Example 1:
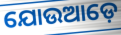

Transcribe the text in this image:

ଯୋଉଆଡ଼େ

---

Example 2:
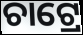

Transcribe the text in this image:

ଚାଟ୍ରେ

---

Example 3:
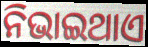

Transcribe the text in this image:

ନିଭାଇଥାଏ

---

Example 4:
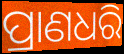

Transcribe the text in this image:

ପ୍ରାଣଧରି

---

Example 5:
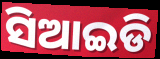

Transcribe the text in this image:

ସିଆଇଡି